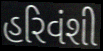
હરિવંશી